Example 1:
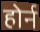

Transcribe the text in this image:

होर्न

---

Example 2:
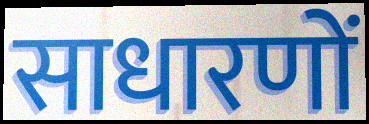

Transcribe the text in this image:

साधारणों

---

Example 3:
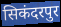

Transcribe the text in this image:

सिकंदरपुर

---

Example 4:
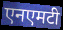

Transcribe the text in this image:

एनएमटी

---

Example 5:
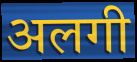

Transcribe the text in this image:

अलगी